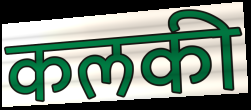
कलकी